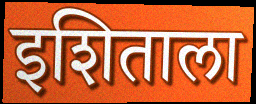
इशिताला